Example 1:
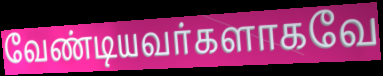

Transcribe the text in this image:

வேண்டியவர்களாகவே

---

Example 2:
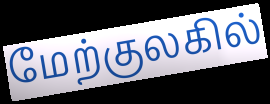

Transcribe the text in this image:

மேற்குலகில்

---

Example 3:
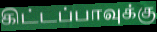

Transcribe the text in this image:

கிட்டப்பாவுக்கு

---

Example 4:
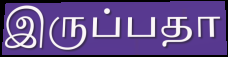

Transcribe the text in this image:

இருப்பதா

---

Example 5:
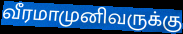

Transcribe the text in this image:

வீரமாமுனிவருக்கு